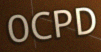
OCPD